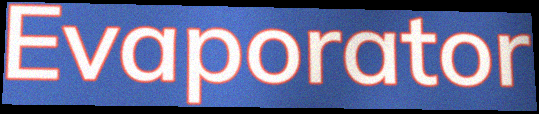
Evaporator